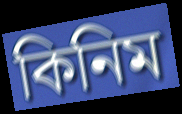
কিনিম